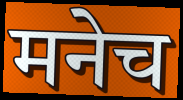
मनेच